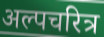
अल्पचरित्र